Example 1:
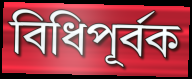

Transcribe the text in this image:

বিধিপূর্বক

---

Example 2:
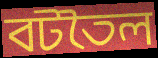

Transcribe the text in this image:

বটতৈল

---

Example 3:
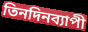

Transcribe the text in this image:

তিনদিনব্যাপী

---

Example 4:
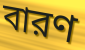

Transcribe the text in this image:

বারণ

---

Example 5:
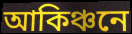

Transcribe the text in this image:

আকিঞ্চনে